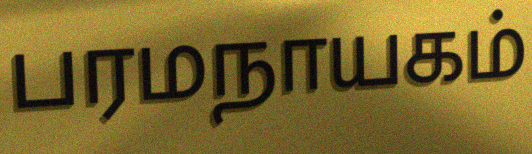
பரமநாயகம்